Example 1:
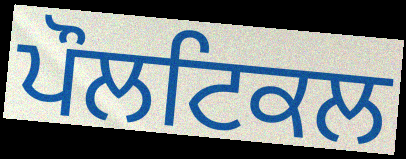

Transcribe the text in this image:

ਪੌਲਟਿਕਲ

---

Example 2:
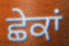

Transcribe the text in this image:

ਛੇਕਾਂ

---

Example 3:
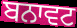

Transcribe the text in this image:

ਬਨਾਵਟ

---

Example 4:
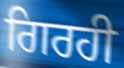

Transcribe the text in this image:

ਗਿਰਹੀ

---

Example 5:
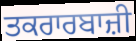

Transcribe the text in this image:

ਤਕਰਾਰਬਾਜ਼ੀ